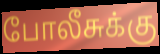
போலீசுக்கு